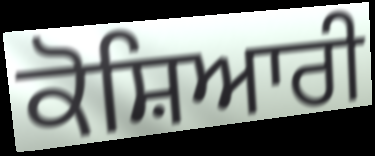
ਕੋਸ਼ਿਆਰੀ